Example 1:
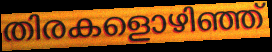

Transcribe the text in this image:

തിരകളൊഴിഞ്ഞ്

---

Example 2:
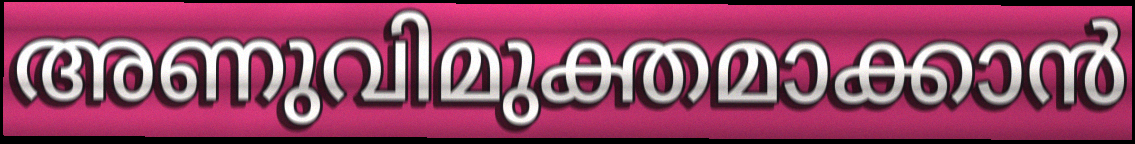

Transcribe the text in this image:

അണുവിമുക്തമാക്കാൻ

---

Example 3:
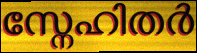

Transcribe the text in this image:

സ്നേഹിതർ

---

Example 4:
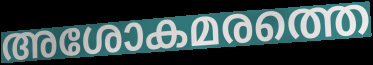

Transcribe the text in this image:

അശോകമരത്തെ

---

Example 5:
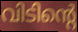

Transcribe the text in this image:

വിടിന്റെ